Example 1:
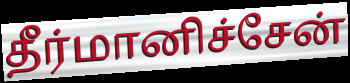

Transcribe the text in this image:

தீர்மானிச்சேன்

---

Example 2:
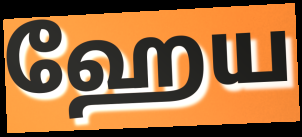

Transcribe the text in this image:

ஹேய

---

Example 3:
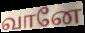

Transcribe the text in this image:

வானே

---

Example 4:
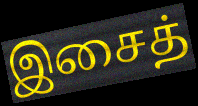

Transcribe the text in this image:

இசைத்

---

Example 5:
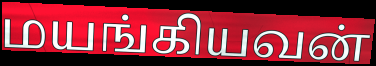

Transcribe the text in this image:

மயங்கியவன்